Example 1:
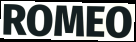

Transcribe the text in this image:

ROMEO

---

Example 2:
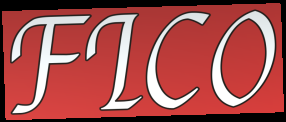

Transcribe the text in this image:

FICO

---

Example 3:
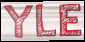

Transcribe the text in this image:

YLE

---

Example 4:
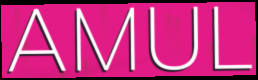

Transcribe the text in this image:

AMUL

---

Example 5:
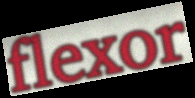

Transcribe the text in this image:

flexor